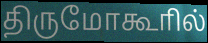
திருமோகூரில்